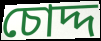
চোদ্দ